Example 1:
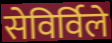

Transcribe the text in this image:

सेविर्विले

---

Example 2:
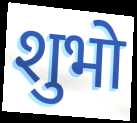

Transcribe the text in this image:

शुभो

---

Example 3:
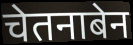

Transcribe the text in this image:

चेतनाबेन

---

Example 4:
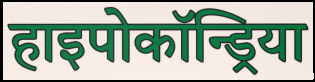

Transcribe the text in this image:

हाइपोकॉन्ड्रिया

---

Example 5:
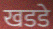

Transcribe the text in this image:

खडडे